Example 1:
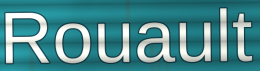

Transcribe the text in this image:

Rouault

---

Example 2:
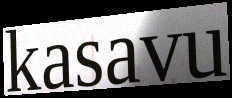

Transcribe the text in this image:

kasavu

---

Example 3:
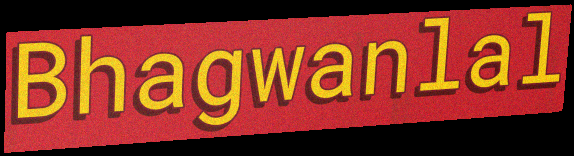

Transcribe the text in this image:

Bhagwanlal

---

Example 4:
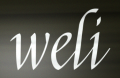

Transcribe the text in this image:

weli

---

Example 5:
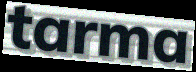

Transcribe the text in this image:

tarma